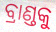
ବ୍ରାଣ୍ଡକୁ